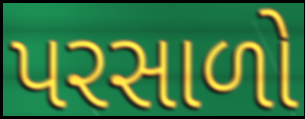
પરસાળો